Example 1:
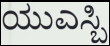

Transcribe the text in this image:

ಯುಎಸ್ಬಿ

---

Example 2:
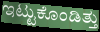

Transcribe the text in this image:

ಇಟ್ಟುಕೊಂಡಿತ್ತು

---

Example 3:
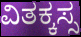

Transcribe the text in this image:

ವಿತಕ್ಕಸ್ಸ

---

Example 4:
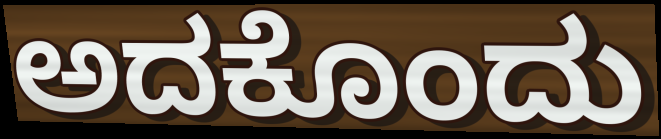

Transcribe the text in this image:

ಅದಕೊಂದು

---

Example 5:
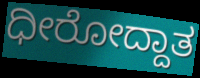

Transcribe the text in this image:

ಧೀರೋದ್ದಾತ